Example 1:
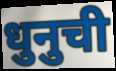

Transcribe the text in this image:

धुनुची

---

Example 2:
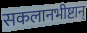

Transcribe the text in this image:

सकलानभीष्टान्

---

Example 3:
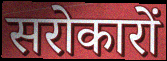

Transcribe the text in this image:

सरोकारों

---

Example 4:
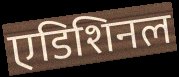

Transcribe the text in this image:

एडिशिनल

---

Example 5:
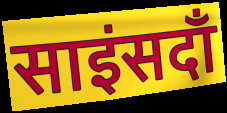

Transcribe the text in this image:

साइंसदाँ